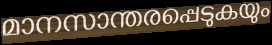
മാനസാന്തരപ്പെടുകയും